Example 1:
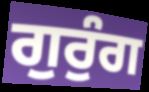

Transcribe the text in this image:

ਗੁਰੁੰਗ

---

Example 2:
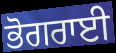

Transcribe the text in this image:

ਭੋਗਰਾਈ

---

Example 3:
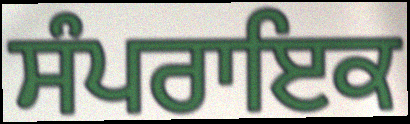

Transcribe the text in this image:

ਸੰਪਰਾਇਕ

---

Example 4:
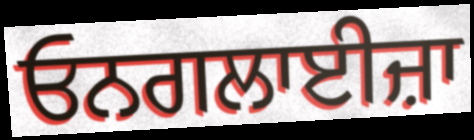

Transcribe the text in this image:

ਓਨਗਲਾਈਜ਼ਾ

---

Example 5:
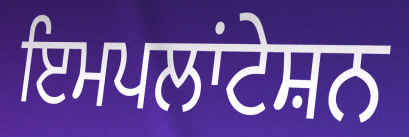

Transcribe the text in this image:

ਇਮਪਲਾਂਟੇਸ਼ਨ